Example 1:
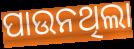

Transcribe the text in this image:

ପାଉନଥିଲା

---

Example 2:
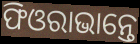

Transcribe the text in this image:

ଫିଓରାଭାନ୍ତେ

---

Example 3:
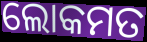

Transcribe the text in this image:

ଲୋକମତ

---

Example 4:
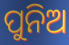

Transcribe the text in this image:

ପୁନିଅ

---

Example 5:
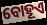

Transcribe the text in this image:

ବୋହୂଏ